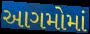
આગમોમાં